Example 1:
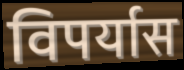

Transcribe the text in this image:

विपर्यास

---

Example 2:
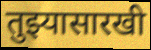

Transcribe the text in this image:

तुझ्यासारखी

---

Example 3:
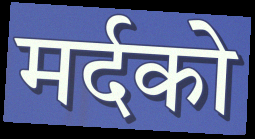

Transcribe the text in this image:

मर्दको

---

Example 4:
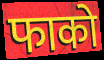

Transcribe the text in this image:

फाको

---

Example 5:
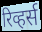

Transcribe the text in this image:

रिव्हर्स